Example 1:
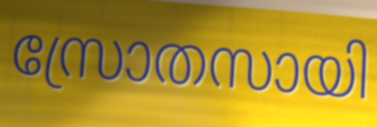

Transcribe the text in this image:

സ്രോതസായി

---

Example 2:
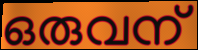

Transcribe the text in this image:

ഒരുവന്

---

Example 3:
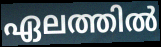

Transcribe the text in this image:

ഏലത്തിൽ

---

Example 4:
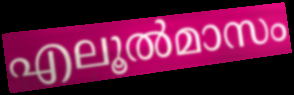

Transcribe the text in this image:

എലൂൽമാസം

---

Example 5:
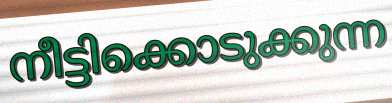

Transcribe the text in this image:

നീട്ടിക്കൊടുക്കുന്ന